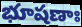
భూషణాః